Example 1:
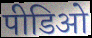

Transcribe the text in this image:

पीडिओ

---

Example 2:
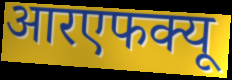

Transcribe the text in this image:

आरएफक्यू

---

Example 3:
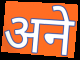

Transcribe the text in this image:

अने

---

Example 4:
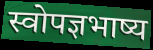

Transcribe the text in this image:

स्वोपज्ञभाष्य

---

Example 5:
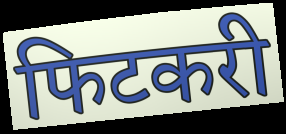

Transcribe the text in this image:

फिटकरी